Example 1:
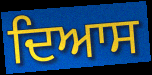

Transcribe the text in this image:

ਦਿਆਸ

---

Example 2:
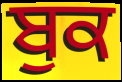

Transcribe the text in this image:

ਬੁਕ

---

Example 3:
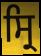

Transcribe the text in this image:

ਸ੍ਰਿ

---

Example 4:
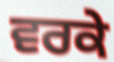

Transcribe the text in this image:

ਵਰਕੇ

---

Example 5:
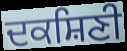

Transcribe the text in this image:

ਦਕਸ਼ਿਣੀ